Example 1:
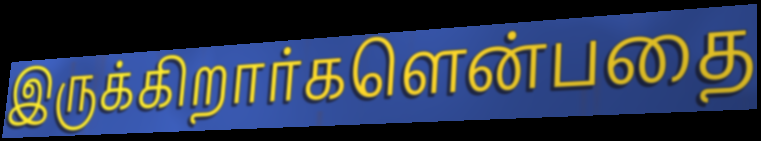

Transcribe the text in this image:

இருக்கிறார்களென்பதை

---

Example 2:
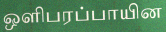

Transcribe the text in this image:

ஒளிபரப்பாயின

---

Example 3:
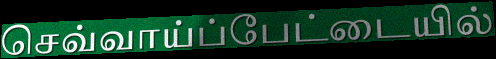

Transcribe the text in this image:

செவ்வாய்ப்பேட்டையில்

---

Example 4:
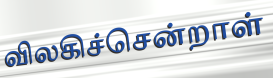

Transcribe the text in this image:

விலகிச்சென்றாள்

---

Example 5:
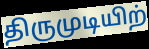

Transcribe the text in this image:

திருமுடியிற்